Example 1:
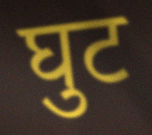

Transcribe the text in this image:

घुट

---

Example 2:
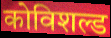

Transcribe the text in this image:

कोविशल्ड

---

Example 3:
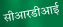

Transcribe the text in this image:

सीआरडीआई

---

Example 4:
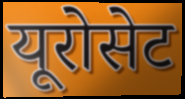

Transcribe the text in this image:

यूरोसेट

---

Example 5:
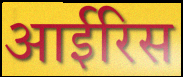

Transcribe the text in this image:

आईरिस